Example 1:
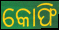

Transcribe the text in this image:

କୋଫି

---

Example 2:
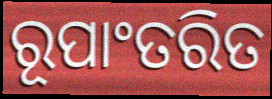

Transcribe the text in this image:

ରୂପାଂତରିତ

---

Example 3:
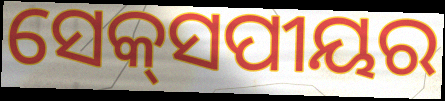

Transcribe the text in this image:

ସେକ୍‌ସପୀୟର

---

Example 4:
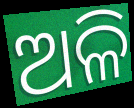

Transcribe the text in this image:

ଅଳି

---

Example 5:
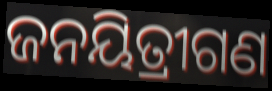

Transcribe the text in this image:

ଜନୟିତ୍ରୀଗଣ